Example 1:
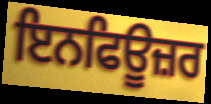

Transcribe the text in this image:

ਇਨਫਿਊਜ਼ਰ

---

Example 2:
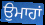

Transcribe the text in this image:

ਉਮਾਹਾਂ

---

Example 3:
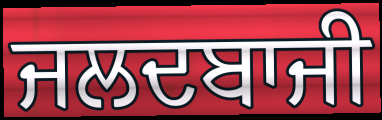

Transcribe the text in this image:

ਜਲਦਬਾਜੀ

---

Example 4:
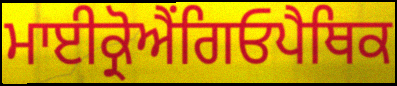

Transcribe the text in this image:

ਮਾਈਕ੍ਰੋਐਂਗਿਓਪੈਥਿਕ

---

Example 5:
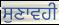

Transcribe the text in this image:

ਸੁਣਾਵਹੀ